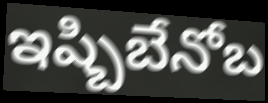
ఇష్బిబేనోబ